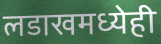
लडाखमध्येही